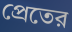
প্রেতের